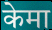
केमा